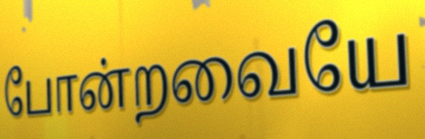
போன்றவையே